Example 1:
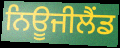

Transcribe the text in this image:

ਨਿਊਜੀਲੈਂਡ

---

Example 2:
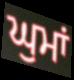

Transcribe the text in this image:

ਘੁਮਾਂ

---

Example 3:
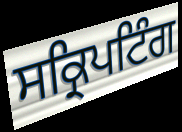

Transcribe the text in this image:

ਸਕ੍ਰਿਪਟਿੰਗ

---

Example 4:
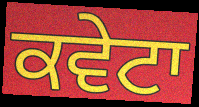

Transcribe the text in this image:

ਕਵੇਟਾ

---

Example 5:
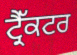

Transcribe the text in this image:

ਟ੍ਰੈੱਕਟਰ